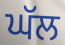
ਘੱਲ